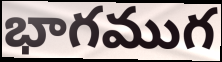
భాగముగ